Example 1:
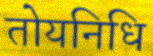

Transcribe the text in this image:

तोयनिधि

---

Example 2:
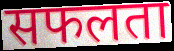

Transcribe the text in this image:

सफलता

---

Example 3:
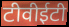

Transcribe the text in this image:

टीवीईटी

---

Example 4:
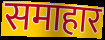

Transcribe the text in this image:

समाहार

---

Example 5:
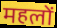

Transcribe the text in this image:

महलों